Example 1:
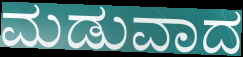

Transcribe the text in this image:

ಮಡುವಾದ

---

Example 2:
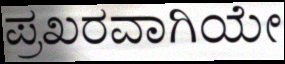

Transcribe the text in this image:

ಪ್ರಖರವಾಗಿಯೇ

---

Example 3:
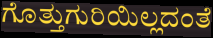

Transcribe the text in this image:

ಗೊತ್ತುಗುರಿಯಿಲ್ಲದಂತೆ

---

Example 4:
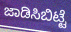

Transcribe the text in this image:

ಜಾಡಿಸಿಬಿಟ್ಟೆ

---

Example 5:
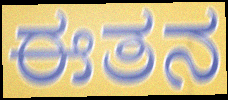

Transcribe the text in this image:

ಈತನ